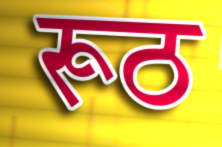
रूठ